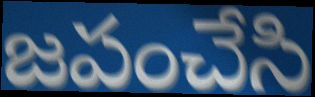
జపంచేసి